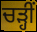
ਚੜ੍ਹੀਂ